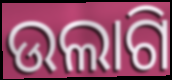
ଉଲାଗି